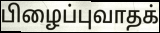
பிழைப்புவாதக்